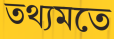
তথ্যমতে